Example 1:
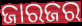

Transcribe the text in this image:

ଜାରଜର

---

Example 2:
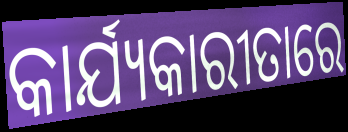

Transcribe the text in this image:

କାର୍ଯ୍ୟକାରୀତାରେ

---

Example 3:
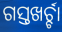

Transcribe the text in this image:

ଗସ୍ତଖର୍ଚ୍ଚା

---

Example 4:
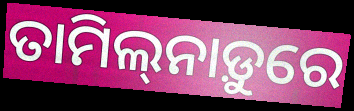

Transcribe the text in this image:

ତାମିଲ୍‌ନାଡ଼ୁରେ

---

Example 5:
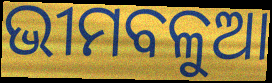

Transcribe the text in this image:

ଭୀମବଳୁଆ